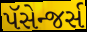
પૅસેન્જર્સ